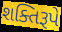
શક્તિરૂપે